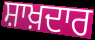
ਸ਼ਾਖ਼ਦਾਰ